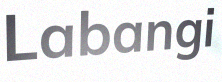
Labangi